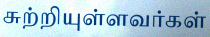
சுற்றியுள்ளவர்கள்